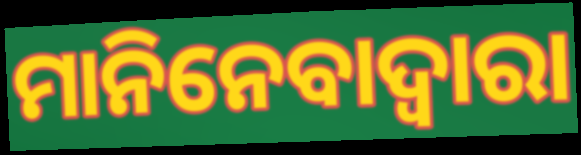
ମାନିନେବାଦ୍ୱାରା